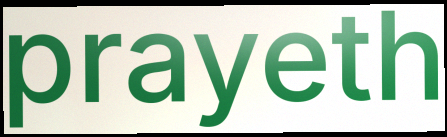
prayeth